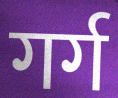
गर्ग